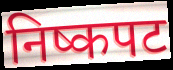
निष्कपट